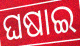
ଘଷାଇ